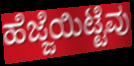
ಹೆಜ್ಜೆಯಿಟ್ಟೆವು